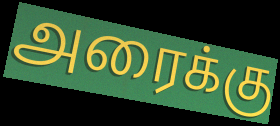
அரைக்கு